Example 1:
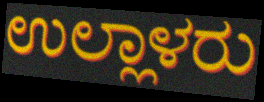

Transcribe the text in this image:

ಉಲ್ಲಾಳರು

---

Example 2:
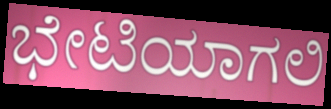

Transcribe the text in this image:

ಭೇಟಿಯಾಗಲಿ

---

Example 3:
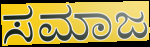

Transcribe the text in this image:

ಸಮಾಜ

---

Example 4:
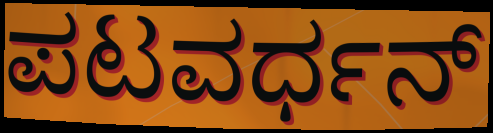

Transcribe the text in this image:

ಪಟವರ್ಧನ್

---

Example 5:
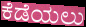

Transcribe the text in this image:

ಕೆಡೆಯಲು